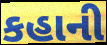
કહાની